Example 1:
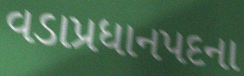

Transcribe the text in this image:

વડાપ્રધાનપદના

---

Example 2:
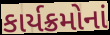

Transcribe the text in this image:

કાર્યક્રમોનાં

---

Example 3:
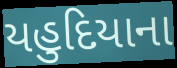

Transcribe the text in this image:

યહુદિયાના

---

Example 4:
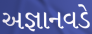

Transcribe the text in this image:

અજ્ઞાનવડે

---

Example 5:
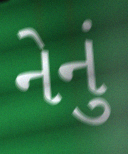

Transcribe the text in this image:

નેનું